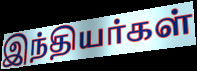
இந்தியர்கள்